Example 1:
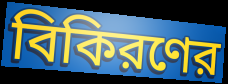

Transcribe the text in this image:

বিকিরণের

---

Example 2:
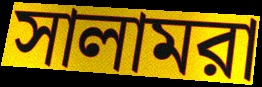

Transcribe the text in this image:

সালামরা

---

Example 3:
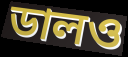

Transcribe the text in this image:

ডালও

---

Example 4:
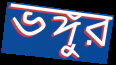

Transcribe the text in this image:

ভঙ্গুর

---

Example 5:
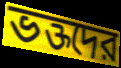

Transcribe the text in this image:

ভক্তদের